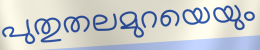
പുതുതലമുറയെയും